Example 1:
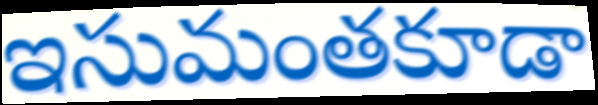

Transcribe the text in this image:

ఇసుమంతకూడా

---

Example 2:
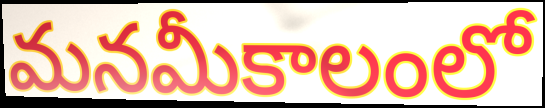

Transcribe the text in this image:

మనమీకాలంలో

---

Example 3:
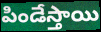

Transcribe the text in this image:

పిండేస్తాయి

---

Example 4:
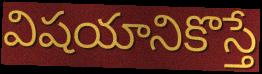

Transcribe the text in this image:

విషయానికొస్తే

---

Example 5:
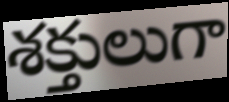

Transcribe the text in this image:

శక్తులుగా